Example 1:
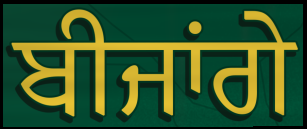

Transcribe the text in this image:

ਬੀਜਾਂਗੇ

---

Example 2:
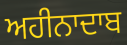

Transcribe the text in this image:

ਅਹੀਨਾਦਾਬ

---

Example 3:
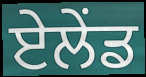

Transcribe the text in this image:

ਏਲੇਂਡ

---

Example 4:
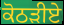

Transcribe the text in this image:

ਕੋਠੜੀਏ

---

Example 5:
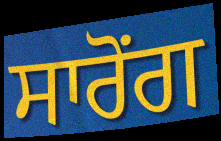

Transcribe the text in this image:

ਸਾਰੋਂਗ